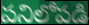
పనిలోపడి